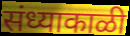
संध्याकाळी